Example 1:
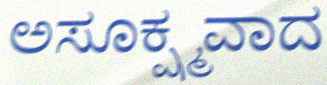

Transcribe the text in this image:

ಅಸೂಕ್ಷ್ಮವಾದ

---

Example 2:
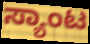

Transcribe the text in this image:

ಸ್ಯಾಂಟ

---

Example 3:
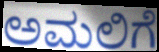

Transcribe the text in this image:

ಅಮಲಿಗೆ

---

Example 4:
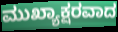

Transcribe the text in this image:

ಮುಖ್ಯಾಕ್ಷರವಾದ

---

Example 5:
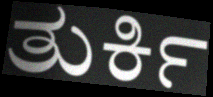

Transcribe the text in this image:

ತುರ್ಕಿ